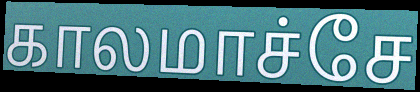
காலமாச்சே